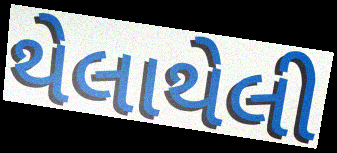
થેલાથેલી